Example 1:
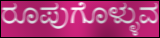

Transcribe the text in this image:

ರೂಪುಗೊಳ್ಳುವ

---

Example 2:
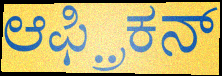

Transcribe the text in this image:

ಆಫ಼್ರಿಕನ್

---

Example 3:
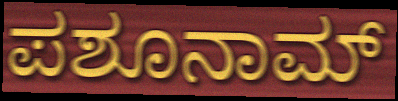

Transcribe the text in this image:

ಪಶೂನಾಮ್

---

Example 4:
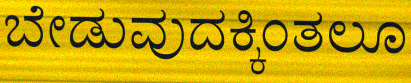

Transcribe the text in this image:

ಬೇಡುವುದಕ್ಕಿಂತಲೂ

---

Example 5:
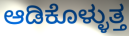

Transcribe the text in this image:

ಆಡಿಕೊಳ್ಳುತ್ತ